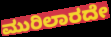
ಮುರಿಲಾರದೇ